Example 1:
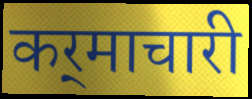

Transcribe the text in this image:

कर्माचारी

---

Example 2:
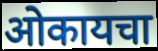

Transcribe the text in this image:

ओकायचा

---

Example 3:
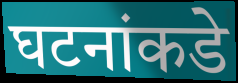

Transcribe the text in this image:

घटनांकडे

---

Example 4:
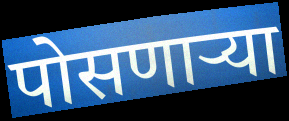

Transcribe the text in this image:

पोसणाऱ्या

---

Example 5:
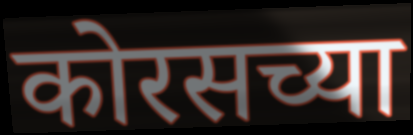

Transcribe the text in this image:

कोरसच्या